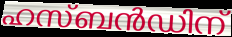
ഹസ്ബൻഡിന്